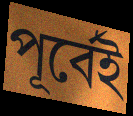
পূৰ্বেই